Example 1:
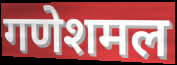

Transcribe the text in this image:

गणेशमल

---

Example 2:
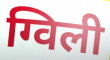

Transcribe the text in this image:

ग्विली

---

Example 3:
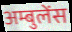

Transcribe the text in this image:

अम्बुलेंस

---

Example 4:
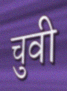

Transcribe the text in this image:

चुवी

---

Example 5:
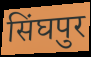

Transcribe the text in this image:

सिंघपुर